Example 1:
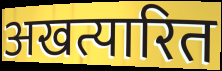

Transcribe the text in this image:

अखत्यारित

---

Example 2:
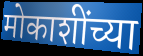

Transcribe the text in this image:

मोकाशींच्या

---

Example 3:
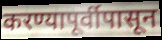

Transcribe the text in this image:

करण्यापूर्वीपासून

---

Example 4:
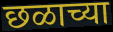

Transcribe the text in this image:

छळाच्या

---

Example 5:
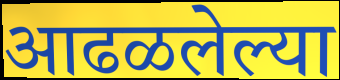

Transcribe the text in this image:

आढळलेल्या